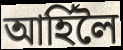
আৰ্হিলৈ